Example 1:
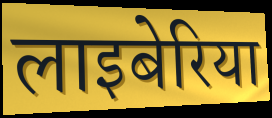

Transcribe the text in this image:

लाइबेरिया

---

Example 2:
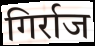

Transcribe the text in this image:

गिर्राज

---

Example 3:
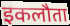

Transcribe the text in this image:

इकलौता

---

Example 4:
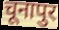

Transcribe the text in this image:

चूनापुर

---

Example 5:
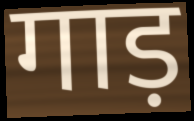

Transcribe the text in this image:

गाड़